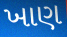
ખાણ